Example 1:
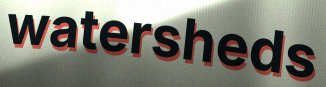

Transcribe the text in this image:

watersheds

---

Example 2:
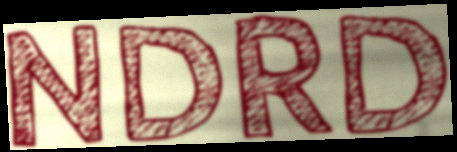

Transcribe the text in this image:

NDRD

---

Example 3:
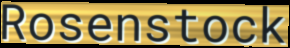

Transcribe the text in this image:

Rosenstock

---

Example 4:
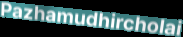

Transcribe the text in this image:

Pazhamudhircholai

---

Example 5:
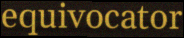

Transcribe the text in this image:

equivocator